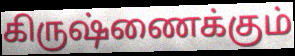
கிருஷ்ணைக்கும்